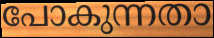
പോകുന്നതാ